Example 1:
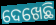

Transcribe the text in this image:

ଦେଖେଛି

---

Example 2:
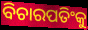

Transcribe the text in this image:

ବିଚାରପତିଂକୁ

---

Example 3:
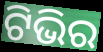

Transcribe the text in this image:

ଟିଭିର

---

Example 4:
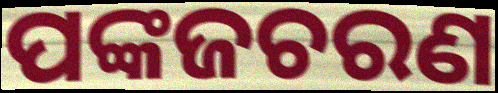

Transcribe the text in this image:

ପଙ୍କଜଚରଣ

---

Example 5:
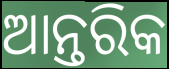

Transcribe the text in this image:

ଆନ୍ତରିକ